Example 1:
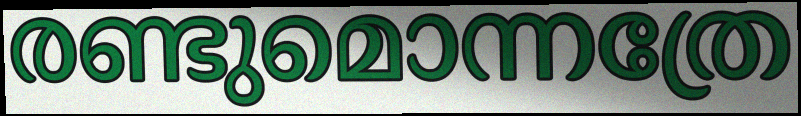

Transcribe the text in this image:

രണ്ടുമൊന്നത്രേ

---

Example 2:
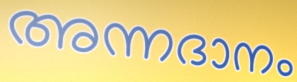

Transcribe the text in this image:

അന്നദാനം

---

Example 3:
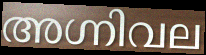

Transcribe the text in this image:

അഗ്നിവല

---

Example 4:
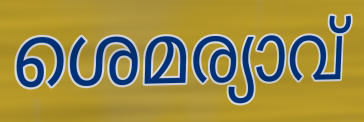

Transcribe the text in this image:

ശെമര്യാവ്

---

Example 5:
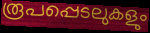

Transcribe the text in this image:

രൂപപ്പെടലുകളും